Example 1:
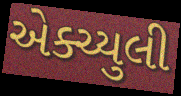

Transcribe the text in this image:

એક્ચ્યુલી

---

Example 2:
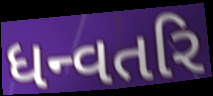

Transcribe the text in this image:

ધન્વતરિ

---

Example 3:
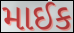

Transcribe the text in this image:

માઈક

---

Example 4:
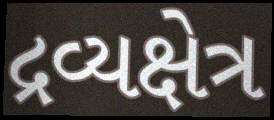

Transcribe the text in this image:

દ્રવ્યક્ષેત્ર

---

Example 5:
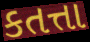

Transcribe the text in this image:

કતત્તા